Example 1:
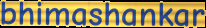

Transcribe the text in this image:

bhimashankar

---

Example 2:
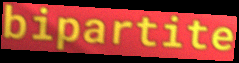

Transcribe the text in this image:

bipartite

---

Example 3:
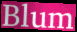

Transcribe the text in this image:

Blum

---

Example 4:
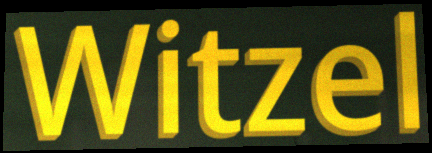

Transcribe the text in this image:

Witzel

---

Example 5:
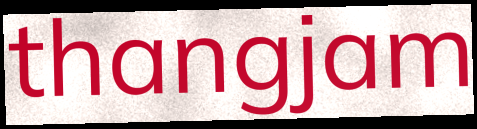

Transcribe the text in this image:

thangjam